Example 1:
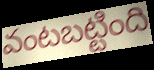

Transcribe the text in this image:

వంటబట్టింది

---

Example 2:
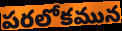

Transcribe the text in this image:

పరలోకమున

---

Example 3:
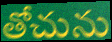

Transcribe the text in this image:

తోచును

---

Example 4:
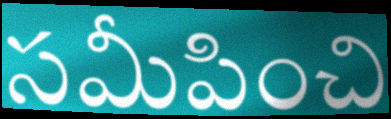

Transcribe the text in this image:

సమీపించి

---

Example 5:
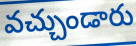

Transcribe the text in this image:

వచ్చుండారు